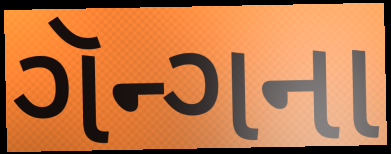
ગૅન્ગના